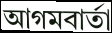
আগমবার্তা